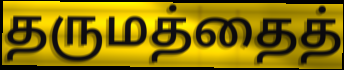
தருமத்தைத்